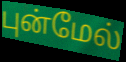
புன்மேல்